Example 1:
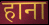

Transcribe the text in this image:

हाना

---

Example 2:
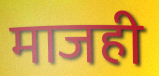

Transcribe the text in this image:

माजही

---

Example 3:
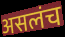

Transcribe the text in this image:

असलंच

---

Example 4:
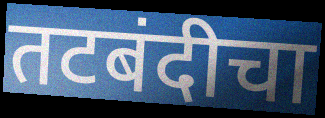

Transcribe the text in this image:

तटबंदीचा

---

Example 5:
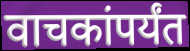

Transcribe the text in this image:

वाचकांपर्यंत